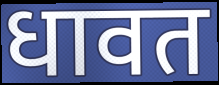
धावत